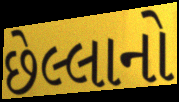
છેલ્લાનો